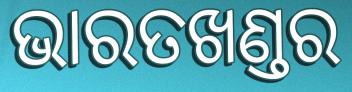
ଭାରତଖଣ୍ଡର